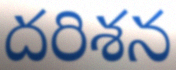
దరిశన